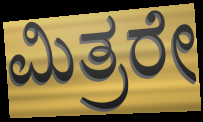
ಮಿತ್ರರೇ